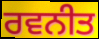
ਰਵਨੀਤ